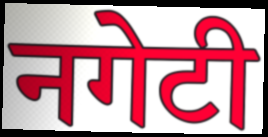
नगेटी